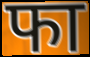
फा